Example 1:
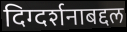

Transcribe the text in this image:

दिग्दर्शनाबद्दल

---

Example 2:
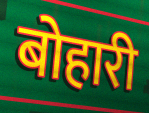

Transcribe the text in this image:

बोहारी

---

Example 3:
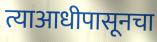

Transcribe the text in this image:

त्याआधीपासूनचा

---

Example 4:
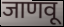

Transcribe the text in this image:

जाणवू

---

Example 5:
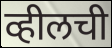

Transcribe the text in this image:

व्हीलची